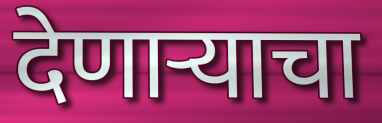
देणार्‍याचा